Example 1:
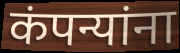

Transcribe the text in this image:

कंपन्यांना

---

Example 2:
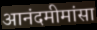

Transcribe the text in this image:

आनंदमीमांसा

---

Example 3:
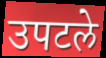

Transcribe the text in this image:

उपटले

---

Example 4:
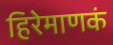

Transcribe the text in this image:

हिरेमाणकं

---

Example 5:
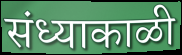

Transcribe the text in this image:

संध्याकाळी